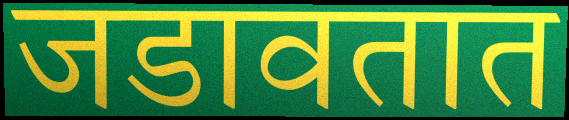
जडावतात